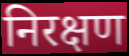
निरक्षण